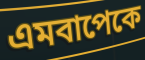
এমবাপেকে